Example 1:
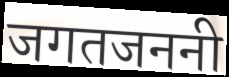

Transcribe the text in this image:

जगतजननी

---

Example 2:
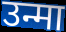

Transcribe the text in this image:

उन्मा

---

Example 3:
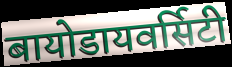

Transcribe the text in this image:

बायोडायवर्सिटी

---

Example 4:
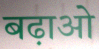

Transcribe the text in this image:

बढ़ाओ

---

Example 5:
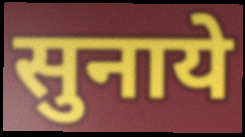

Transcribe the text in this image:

सुनाये